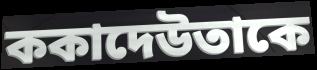
ককাদেউতাকে